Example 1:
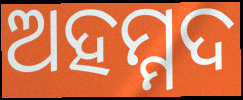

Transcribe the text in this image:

ଅହମ୍ମଦ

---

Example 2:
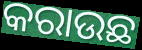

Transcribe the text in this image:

କରାଉଛ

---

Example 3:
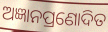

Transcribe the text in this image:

ଅଜ୍ଞାନପ୍ରଣୋଦିତ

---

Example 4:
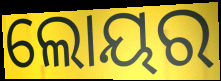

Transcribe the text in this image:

ଲୋୟର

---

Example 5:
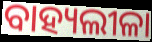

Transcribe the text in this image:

ବାହ୍ୟଲୀଳା